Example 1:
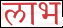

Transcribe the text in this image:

लाभ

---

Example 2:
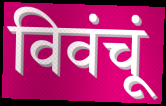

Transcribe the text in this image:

विवंचूं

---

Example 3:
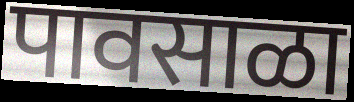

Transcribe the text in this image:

पावसाळा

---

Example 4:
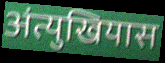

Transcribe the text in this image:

अंत्युखियास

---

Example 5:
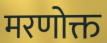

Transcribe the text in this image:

मरणोक्त